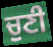
ਚੁਣੀ